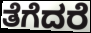
ತೆಗೆದರೆ